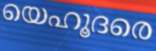
യെഹൂദരെ